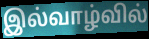
இல்வாழ்வில்